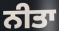
ਨੀਤਾ